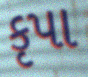
કૃપા